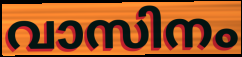
വാസിനം